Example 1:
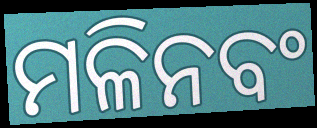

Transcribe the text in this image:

ମଳିନବଂ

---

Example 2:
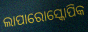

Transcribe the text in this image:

ଲାପାରୋସ୍କୋପିକ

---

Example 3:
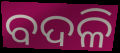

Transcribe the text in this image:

ବଦଳି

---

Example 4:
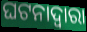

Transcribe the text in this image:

ଘଟନାଦ୍ୱାରା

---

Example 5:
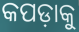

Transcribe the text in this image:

କପଡ଼ାକୁ